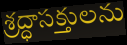
శ్రద్ధాసక్తులను